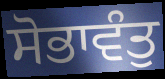
ਸੋਭਾਵੰਤੁ